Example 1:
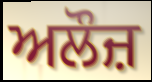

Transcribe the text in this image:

ਅਲੌਜ਼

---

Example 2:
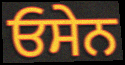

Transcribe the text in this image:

ਓਸੇਨ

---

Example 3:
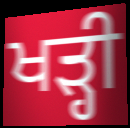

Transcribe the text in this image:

ਖੜ੍ਹੀ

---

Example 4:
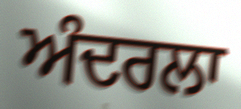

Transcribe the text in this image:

ਅੰਦਰਲਾ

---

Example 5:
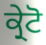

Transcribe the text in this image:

ਕ੍ਰੇਟੋ